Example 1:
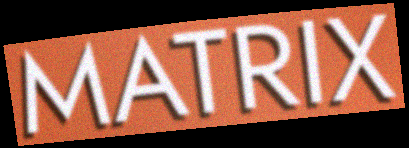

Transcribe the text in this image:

MATRIX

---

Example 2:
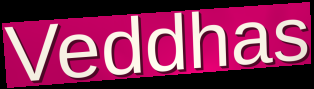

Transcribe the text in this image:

Veddhas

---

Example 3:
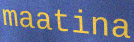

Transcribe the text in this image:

maatina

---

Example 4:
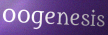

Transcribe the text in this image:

oogenesis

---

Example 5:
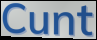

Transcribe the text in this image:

Cunt